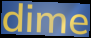
dime